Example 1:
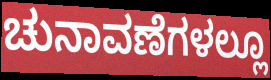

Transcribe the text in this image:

ಚುನಾವಣೆಗಳಲ್ಲೂ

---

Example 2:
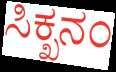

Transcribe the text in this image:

ಸಿಕ್ಖನಂ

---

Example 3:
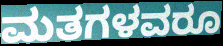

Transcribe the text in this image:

ಮತಗಳವರೂ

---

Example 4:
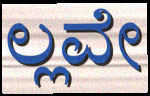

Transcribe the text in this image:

ಲ್ಲವೇ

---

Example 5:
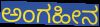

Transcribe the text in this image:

ಅಂಗಹೀನ